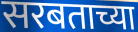
सरबताच्या